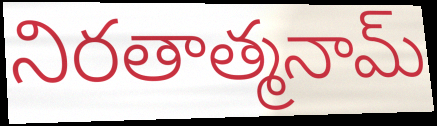
నిరతాత్మనామ్